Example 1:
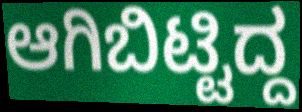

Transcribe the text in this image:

ಆಗಿಬಿಟ್ಟಿದ್ದ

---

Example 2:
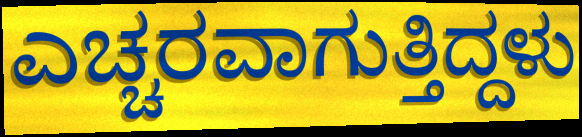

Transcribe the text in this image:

ಎಚ್ಚರವಾಗುತ್ತಿದ್ದಳು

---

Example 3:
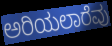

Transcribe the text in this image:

ಅರಿಯಲಾರೆವು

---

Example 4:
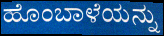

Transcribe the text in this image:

ಹೊಂಬಾಳೆಯನ್ನು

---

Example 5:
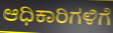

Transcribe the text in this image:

ಆಧಿಕಾರಿಗಳಿಗೆ